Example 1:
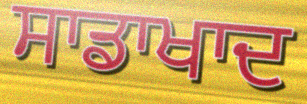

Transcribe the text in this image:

ਸਾਡਾਖਾਦ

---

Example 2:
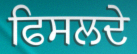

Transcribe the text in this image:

ਫਿਸਲਦੇ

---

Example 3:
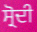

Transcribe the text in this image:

ਸ੍ਰੋਦੀ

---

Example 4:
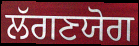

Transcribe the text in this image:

ਲੱਗਣਯੋਗ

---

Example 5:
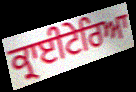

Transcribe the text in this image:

ਕ੍ਰਾਈਟੇਰਿਆ